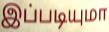
இப்படியுமா